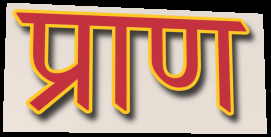
प्राण